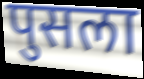
पुसला